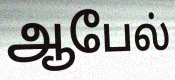
ஆபேல்